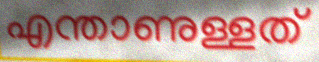
എന്താണുള്ളത്